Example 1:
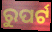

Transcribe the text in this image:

ରୁପର୍ଟ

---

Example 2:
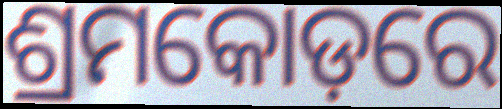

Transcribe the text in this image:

ଶ୍ରମକୋଡ଼ରେ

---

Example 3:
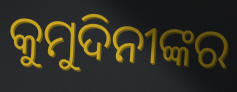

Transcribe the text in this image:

କୁମୁଦିନୀଙ୍କର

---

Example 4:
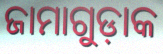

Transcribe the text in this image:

ଜାମାଗୁଡ଼ାକ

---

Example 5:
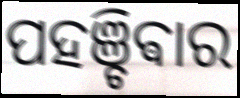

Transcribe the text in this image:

ପହଞ୍ଚିଵାର